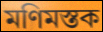
মণিমস্তক